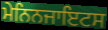
ਮੇਨਿਨਜਾਇਟਸ